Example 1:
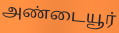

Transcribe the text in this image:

அண்டையூர்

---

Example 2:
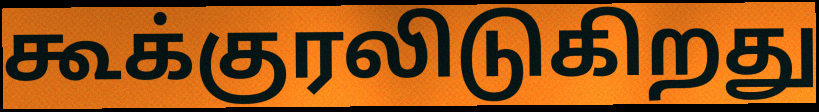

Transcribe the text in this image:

கூக்குரலிடுகிறது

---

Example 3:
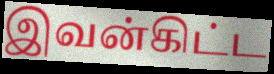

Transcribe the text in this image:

இவன்கிட்ட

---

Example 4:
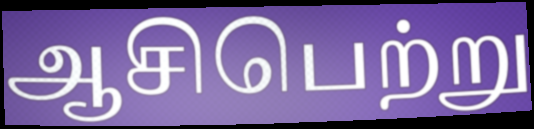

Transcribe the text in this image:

ஆசிபெற்று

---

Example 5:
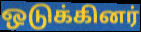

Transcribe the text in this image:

ஒடுக்கினர்